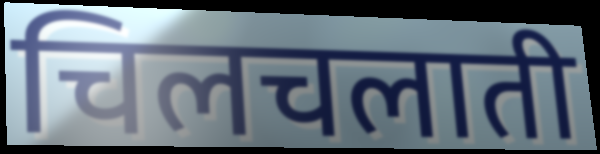
चिलचलाती